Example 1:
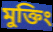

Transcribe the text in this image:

মুক্তিং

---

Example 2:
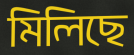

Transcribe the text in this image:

মিলিছে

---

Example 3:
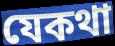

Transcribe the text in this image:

যেকথা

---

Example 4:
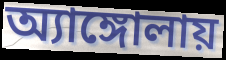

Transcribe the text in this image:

অ্যাঙ্গোলায়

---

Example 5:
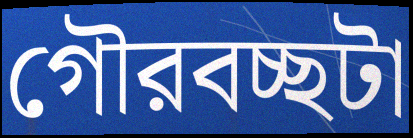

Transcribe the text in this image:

গৌরবচ্ছটা